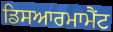
ਡਿਸਆਰਮਾਮੈਂਟ